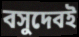
বসুদেবই